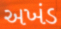
અખંડ